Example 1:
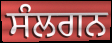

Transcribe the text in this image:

ਸੰਲਗਨ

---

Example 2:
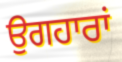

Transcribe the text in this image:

ਉਗਹਾਰਾਂ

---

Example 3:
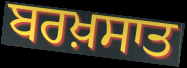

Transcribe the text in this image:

ਬਰਖ਼ਸਾਤ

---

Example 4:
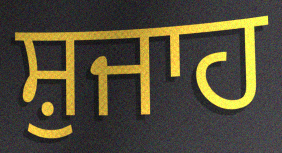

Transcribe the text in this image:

ਸ਼ੁਜਾਹ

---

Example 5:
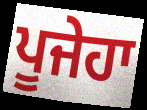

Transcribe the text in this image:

ਪੂਜੇਹਾ